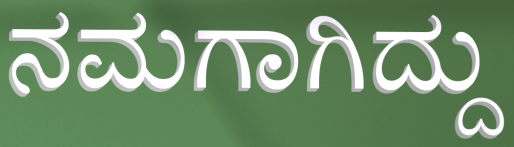
ನಮಗಾಗಿದ್ದು